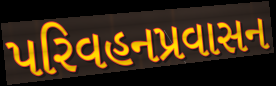
પરિવહનપ્રવાસન